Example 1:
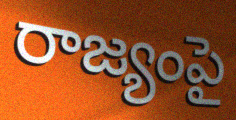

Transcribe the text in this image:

రాజ్యంపై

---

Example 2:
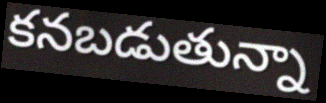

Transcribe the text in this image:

కనబడుతున్నా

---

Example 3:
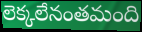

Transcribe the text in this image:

లెక్కలేనంతమంది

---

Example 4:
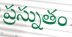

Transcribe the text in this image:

ప్రస్నుతం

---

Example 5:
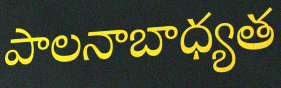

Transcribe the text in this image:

పాలనాబాధ్యత